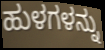
ಹುಳಗಳನ್ನು